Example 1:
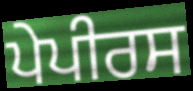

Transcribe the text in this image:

ਪੇਪੀਰਸ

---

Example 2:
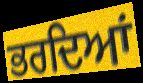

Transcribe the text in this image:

ਭਰਦਿਆਂ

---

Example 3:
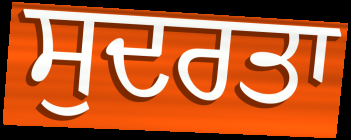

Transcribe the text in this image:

ਸੁਦਰਤਾ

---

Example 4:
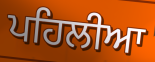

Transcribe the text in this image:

ਪਹਿਲੀਆ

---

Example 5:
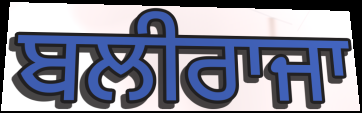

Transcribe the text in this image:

ਬਲੀਰਾਜਾ